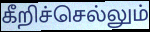
கீறிச்செல்லும்